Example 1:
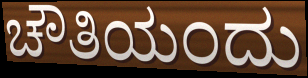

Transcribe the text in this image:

ಚೌತಿಯಂದು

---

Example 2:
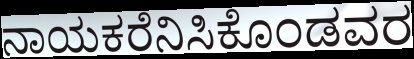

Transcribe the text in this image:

ನಾಯಕರೆನಿಸಿಕೊಂಡವರ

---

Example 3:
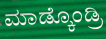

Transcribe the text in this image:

ಮಾಡ್ಕೊಂಡ್ರಿ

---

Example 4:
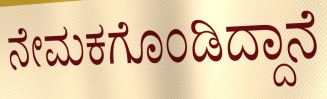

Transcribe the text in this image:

ನೇಮಕಗೊಂಡಿದ್ದಾನೆ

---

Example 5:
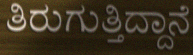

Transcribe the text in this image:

ತಿರುಗುತ್ತಿದ್ದಾನೆ